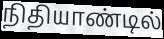
நிதியாண்டில்